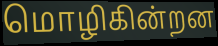
மொழிகின்றன